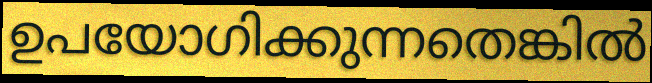
ഉപയോഗിക്കുന്നതെങ്കിൽ